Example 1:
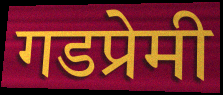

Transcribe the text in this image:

गडप्रेमी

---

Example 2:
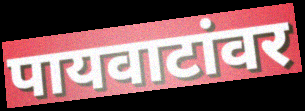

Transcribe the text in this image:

पायवाटांवर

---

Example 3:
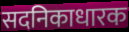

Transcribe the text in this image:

सदनिकाधारक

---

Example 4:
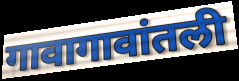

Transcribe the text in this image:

गावागावांतली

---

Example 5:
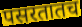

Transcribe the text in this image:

पसरतातच